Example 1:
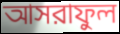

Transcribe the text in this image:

আসরাফুল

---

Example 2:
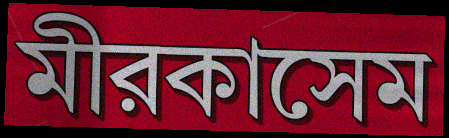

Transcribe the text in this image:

মীরকাসেম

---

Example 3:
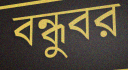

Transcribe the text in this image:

বন্ধুবর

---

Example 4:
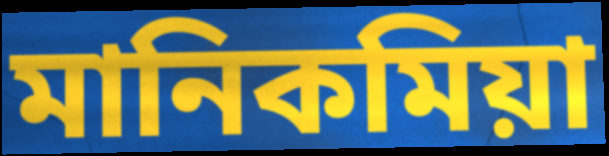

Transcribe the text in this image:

মানিকমিয়া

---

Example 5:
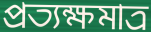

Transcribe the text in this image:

প্রত্যক্ষমাত্র